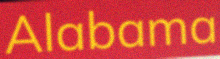
Alabama